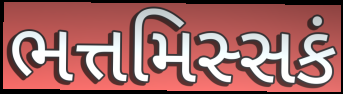
ભત્તમિસ્સકં